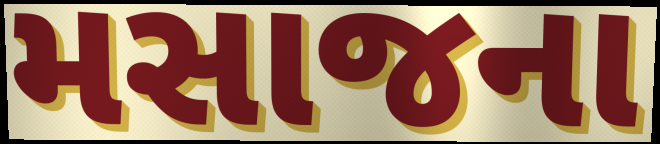
મસાજના